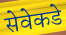
सेवेकडे